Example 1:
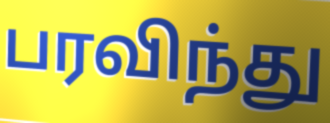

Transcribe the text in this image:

பரவிந்து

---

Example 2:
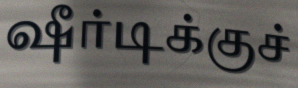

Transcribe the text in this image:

ஷீர்டிக்குச்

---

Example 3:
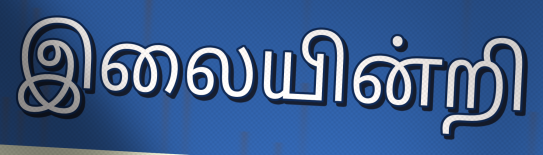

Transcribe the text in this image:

இலையின்றி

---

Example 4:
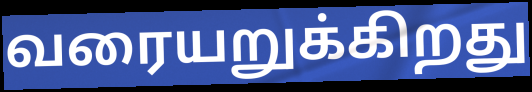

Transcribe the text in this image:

வரையறுக்கிறது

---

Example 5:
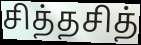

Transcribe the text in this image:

சித்தசித்